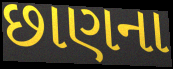
છાણના